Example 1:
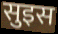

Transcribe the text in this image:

सुइस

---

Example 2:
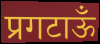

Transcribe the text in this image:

प्रगटाऊँ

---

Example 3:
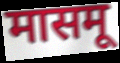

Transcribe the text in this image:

मासमू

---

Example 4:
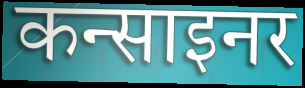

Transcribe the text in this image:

कन्साइनर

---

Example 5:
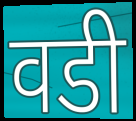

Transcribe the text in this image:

वडी